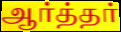
ஆர்த்தர்